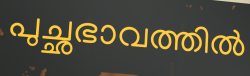
പുച്ഛഭാവത്തിൽ